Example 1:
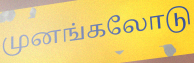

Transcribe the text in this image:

முனங்கலோடு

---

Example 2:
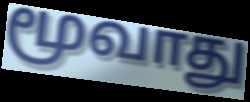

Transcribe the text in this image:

மூவாது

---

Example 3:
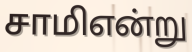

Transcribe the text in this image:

சாமிஎன்று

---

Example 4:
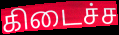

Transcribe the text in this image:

கிடைச்ச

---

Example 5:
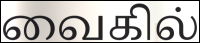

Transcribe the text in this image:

வைகில்